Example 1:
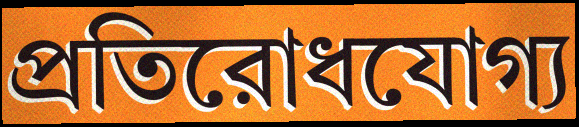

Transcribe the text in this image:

প্রতিরোধযোগ্য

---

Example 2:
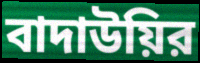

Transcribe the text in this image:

বাদাউয়ির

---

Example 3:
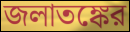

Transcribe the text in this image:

জলাতঙ্কের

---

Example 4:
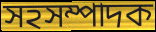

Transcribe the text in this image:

সহসম্পাদক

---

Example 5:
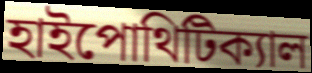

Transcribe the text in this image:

হাইপোথিটিক্যাল